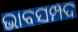
ଭାବସମ୍ପଦ